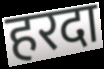
हरदा